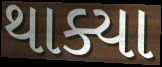
થાક્યા